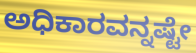
ಅಧಿಕಾರವನ್ನಷ್ಟೇ